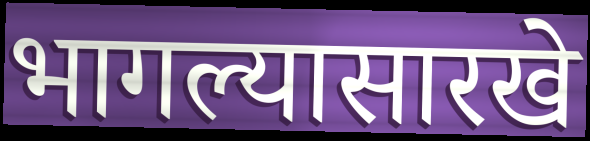
भागल्यासारखे